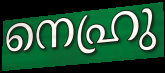
നെഹ്രു